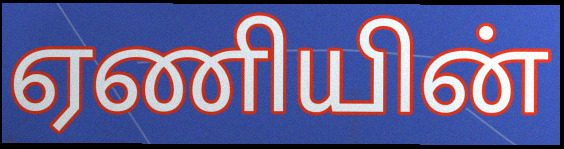
ஏணியின்